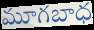
మూగబాధ